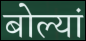
बोल्यां